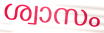
ശ്വാസം